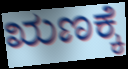
ಋಣಕ್ಕೆ